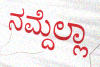
ನಮ್ದೆಲ್ಲಾ